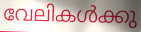
വേലികൾക്കു